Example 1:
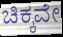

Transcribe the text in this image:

ಚಿಕ್ಕವೇ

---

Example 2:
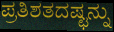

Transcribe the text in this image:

ಪ್ರತಿಶತದಷ್ಟನ್ನು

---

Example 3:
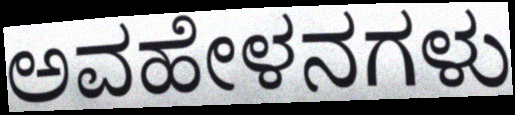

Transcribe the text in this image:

ಅವಹೇಳನಗಳು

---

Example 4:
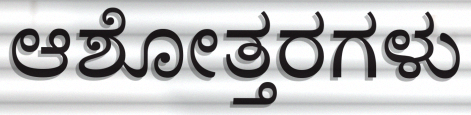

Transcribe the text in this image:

ಆಶೋತ್ತರಗಳು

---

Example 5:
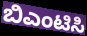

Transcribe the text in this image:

ಬಿಎಂಟಿಸಿ